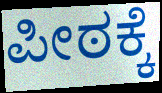
ಪೀಠಕ್ಕೆ